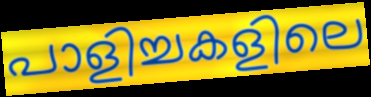
പാളിച്ചകളിലെ